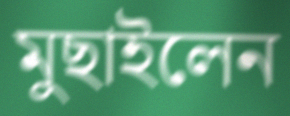
মুছাইলেন